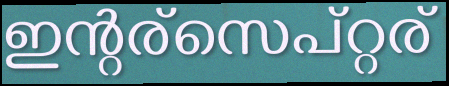
ഇന്റര്സെപ്റ്റര്